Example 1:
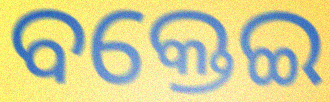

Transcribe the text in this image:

ବକ୍ତେଇ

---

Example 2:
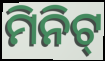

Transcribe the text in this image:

ମିନିଟ୍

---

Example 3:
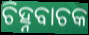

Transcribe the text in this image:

ଚିହ୍ନବାଚକ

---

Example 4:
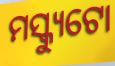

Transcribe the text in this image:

ମସ୍କ୍ୟୁଟୋ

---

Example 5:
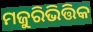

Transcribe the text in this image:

ମଜୁରିଭିତ୍ତିକ